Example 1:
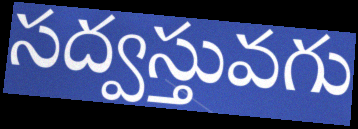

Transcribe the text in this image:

సద్వస్తువగు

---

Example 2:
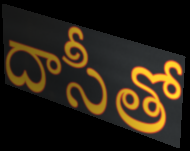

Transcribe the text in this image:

దాసీతో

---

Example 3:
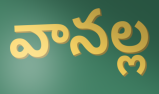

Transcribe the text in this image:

వానల్ల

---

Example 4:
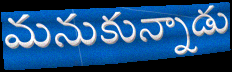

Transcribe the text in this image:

మనుకున్నాడు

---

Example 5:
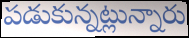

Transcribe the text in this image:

పడుకున్నట్లున్నారు